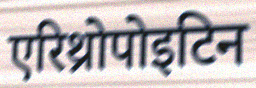
एरिथ्रोपोइटिन